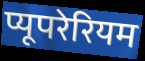
प्यूपरेरियम